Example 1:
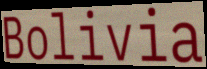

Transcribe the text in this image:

Bolivia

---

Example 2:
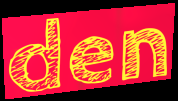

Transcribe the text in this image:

den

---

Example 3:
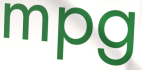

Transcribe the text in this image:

mpg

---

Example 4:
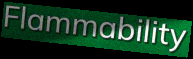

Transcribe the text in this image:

Flammability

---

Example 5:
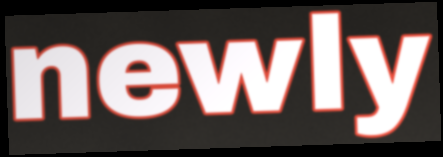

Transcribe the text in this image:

newly